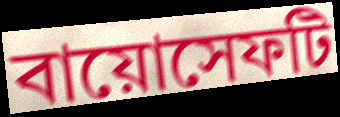
বায়োসেফটি